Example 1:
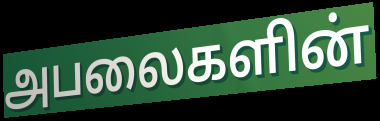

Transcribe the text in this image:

அபலைகளின்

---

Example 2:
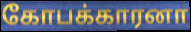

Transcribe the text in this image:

கோபக்காரனா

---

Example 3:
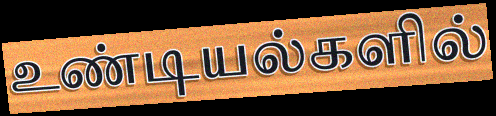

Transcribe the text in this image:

உண்டியல்களில்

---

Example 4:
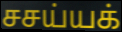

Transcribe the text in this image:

சசய்யக்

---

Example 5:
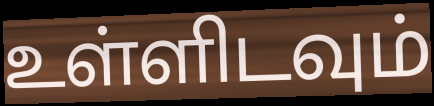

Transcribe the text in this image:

உள்ளிடவும்